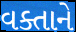
વક્તાને